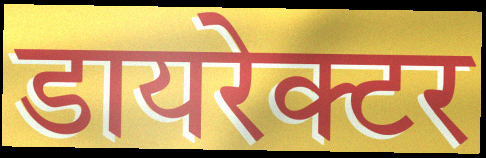
डायरेक्टर